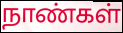
நாண்கள்